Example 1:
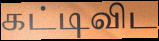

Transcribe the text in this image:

கட்டிவிட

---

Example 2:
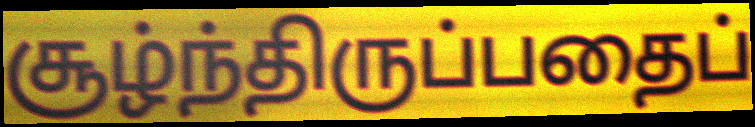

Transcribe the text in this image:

சூழ்ந்திருப்பதைப்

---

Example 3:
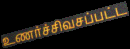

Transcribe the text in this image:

உணர்ச்சிவசப்பட்ட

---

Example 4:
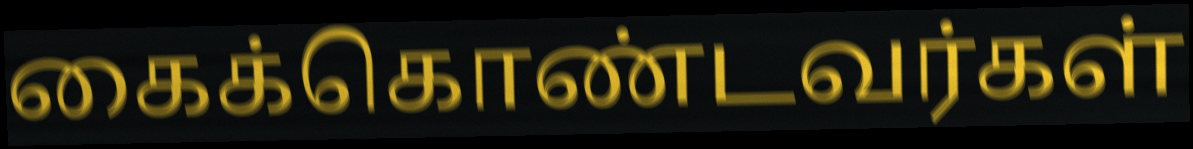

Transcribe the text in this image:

கைக்கொண்டவர்கள்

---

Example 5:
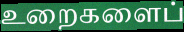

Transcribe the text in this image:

உறைகளைப்